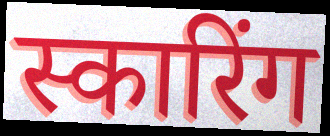
स्कारिंग